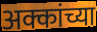
अक्कांच्या